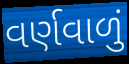
વર્ણવાળું